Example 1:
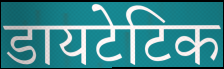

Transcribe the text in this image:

डायटेटिक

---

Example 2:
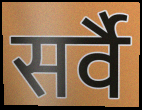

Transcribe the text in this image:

सर्वै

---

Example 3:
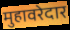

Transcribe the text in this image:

मुहावरेदार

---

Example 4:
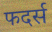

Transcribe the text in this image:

फदर्स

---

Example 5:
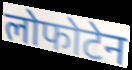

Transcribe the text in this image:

लोफोटेन